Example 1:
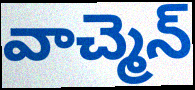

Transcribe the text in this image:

వాచ్మెన్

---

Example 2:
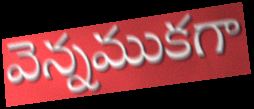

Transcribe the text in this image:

వెన్నముకగా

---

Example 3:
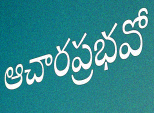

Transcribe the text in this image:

ఆచారప్రభవో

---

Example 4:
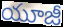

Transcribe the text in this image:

యూజీ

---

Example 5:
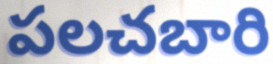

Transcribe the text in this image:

పలచబారి